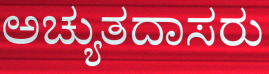
ಅಚ್ಯುತದಾಸರು